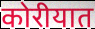
कोरीयात